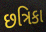
છત્રિકા